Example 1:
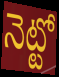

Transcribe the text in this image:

నెట్టో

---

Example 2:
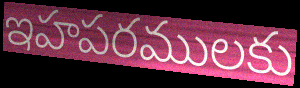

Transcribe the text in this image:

ఇహపరములకు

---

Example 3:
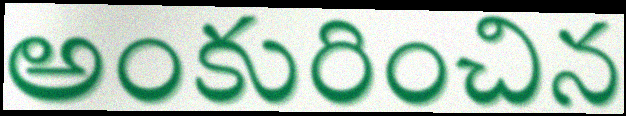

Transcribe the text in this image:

అంకురించిన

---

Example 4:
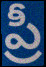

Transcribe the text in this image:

ప్రీ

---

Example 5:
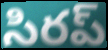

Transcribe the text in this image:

సిరప్